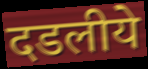
दडलीये